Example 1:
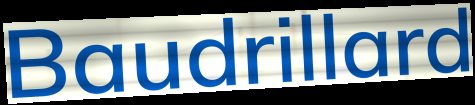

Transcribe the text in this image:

Baudrillard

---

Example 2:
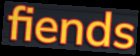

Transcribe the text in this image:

fiends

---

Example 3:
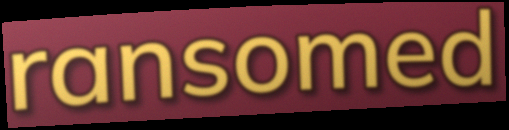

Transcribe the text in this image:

ransomed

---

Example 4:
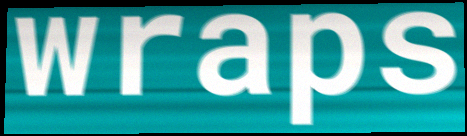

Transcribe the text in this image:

wraps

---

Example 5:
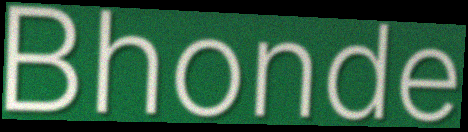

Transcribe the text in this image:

Bhonde